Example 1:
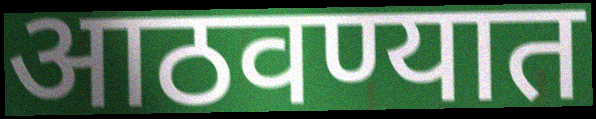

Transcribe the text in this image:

आठवण्यात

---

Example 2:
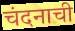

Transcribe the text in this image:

चंदनाची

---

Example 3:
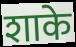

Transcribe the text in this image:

शाके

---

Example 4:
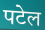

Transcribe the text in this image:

पटेल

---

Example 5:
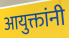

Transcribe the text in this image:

आयुक्तांनी